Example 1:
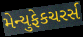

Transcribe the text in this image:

મેન્યુફેકચરર્સ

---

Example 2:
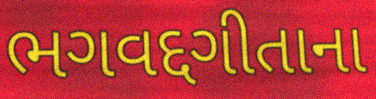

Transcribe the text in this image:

ભગવદ્દગીતાના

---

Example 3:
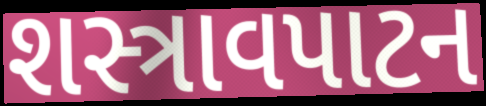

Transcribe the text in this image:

શસ્ત્રાવપાટન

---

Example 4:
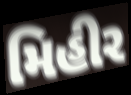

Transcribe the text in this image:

મિહીર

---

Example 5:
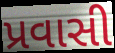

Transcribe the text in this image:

પ્રવાસી